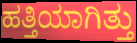
ಹತ್ತಿಯಾಗಿತ್ತು